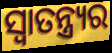
ସ୍ଵାତନ୍ତ୍ର୍ୟର